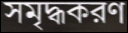
সমৃদ্ধকরণ